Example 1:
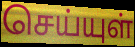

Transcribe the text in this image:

செய்யுள்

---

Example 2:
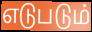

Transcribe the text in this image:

எடுபடும்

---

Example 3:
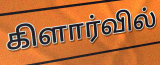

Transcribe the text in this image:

கிளார்வில்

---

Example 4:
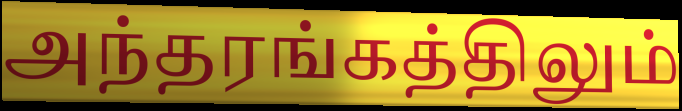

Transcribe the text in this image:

அந்தரங்கத்திலும்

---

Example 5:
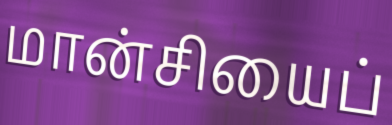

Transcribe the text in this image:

மான்சியைப்